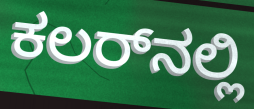
ಕಲರ್‌ನಲ್ಲಿ